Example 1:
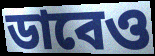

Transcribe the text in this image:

ডাবেও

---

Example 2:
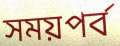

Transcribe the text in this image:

সময়পর্ব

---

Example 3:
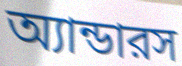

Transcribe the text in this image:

অ্যান্ডারস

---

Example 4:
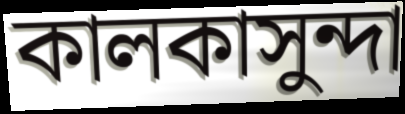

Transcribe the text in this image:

কালকাসুন্দা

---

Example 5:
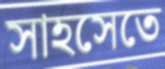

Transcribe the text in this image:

সাহসেতে